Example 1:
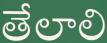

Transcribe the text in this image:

తేలాలి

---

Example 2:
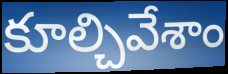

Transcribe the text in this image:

కూల్చివేశాం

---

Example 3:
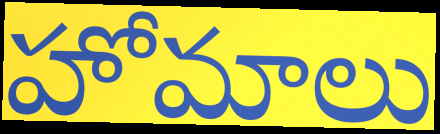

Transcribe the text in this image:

హోమాలు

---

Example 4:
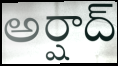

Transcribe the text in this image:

అర్షాద్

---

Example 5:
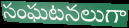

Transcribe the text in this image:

సంఘటనలుగా